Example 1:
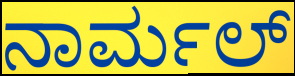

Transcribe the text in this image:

ನಾರ್ಮಲ್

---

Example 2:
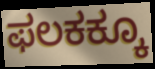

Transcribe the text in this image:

ಫಲಕಕ್ಕೂ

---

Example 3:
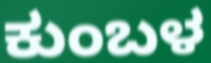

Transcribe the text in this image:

ಕುಂಬಳ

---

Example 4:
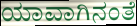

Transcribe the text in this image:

ಯಾವಾಗಿನಂತೆ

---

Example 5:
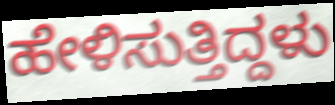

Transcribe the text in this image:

ಹೇಳಿಸುತ್ತಿದ್ದಳು